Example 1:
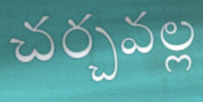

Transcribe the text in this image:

చర్చవల్ల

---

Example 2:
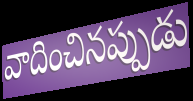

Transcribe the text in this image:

వాదించినప్పుడు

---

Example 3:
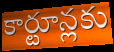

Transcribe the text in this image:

కార్టూన్లకు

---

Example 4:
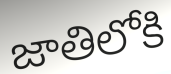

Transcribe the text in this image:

జాతిలోకి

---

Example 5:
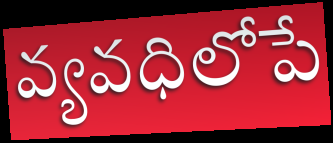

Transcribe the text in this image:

వ్యవధిలోపే